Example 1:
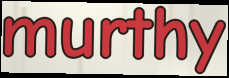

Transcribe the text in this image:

murthy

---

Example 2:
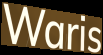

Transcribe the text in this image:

Waris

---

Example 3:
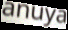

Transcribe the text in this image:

anuya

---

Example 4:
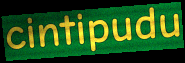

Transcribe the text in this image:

cintipudu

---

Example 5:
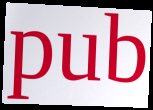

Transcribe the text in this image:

pub